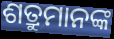
ଶତ୍ରୁମାନଙ୍କ